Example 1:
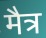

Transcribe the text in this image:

मैत्र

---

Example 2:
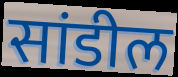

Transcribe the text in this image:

सांडील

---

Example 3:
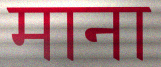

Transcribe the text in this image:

माना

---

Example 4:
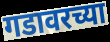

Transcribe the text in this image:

गडावरच्या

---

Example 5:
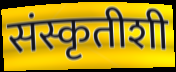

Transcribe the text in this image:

संस्कृतीशी